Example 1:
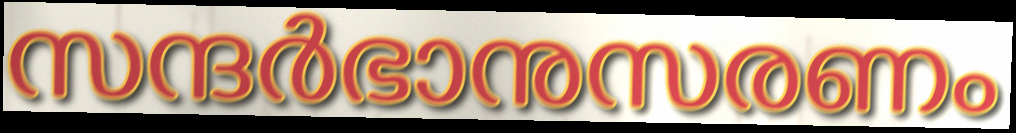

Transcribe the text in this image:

സന്ദർഭാനുസരണം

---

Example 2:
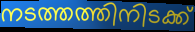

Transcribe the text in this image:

നടത്തത്തിനിടക്ക്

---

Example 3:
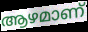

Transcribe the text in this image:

ആഴമാണ്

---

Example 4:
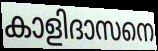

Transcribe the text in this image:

കാളിദാസനെ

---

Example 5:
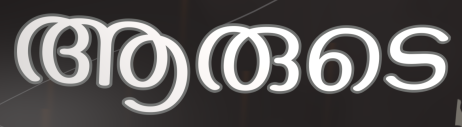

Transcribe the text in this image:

ആരുടെ